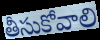
తీసుకోవాలి